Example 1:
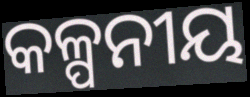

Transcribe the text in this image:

କଳ୍ପନୀୟ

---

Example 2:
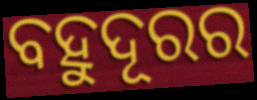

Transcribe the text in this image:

ବହୁଦୂରର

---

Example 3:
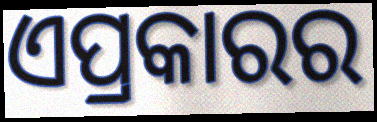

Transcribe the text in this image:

ଏପ୍ରକାରର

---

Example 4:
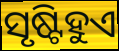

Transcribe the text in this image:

ସୃଷ୍ଟିହୁଏ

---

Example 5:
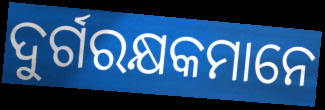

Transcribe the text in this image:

ଦୁର୍ଗରକ୍ଷକମାନେ